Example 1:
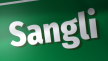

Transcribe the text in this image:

Sangli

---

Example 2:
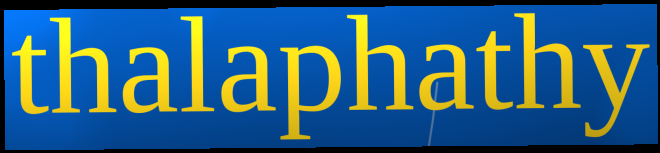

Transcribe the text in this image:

thalaphathy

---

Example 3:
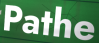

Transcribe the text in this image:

Pathe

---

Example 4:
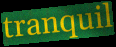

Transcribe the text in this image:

tranquil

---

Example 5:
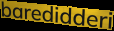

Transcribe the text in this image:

baredidderi